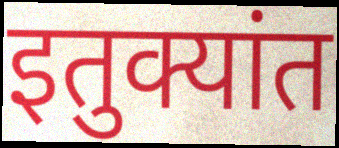
इतुक्यांत